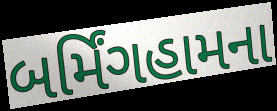
બર્મિંગહામના